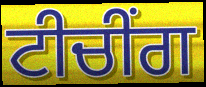
ਟੀਚੀਂਗ